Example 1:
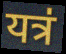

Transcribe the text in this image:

यत्र॑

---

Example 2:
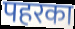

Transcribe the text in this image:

पहरका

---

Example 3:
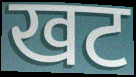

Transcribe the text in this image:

खट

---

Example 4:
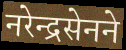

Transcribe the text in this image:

नरेन्द्रसेनने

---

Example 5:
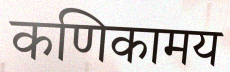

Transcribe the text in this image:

कणिकामय